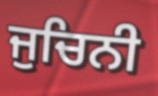
ਜੁਚਿਨੀ